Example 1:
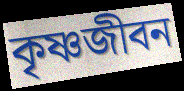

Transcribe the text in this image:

কৃষ্ণজীবন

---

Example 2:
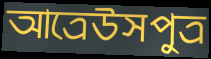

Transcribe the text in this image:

আত্রেউসপুত্র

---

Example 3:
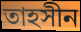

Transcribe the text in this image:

তাহসীন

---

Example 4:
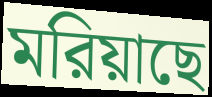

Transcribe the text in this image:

মরিয়াছে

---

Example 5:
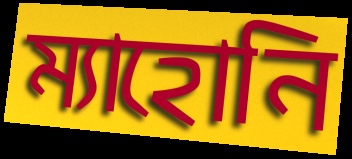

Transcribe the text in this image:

ম্যাহোনি